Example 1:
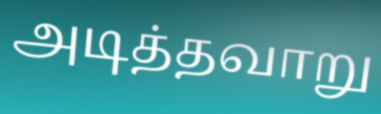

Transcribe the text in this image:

அடித்தவாறு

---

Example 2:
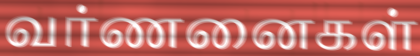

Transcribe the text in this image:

வர்ணனைகள்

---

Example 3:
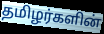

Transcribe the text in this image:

தமிழர்களின்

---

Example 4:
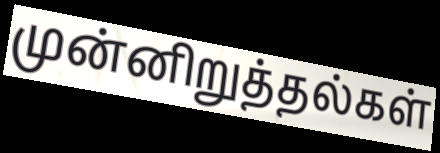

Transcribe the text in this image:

முன்னிறுத்தல்கள்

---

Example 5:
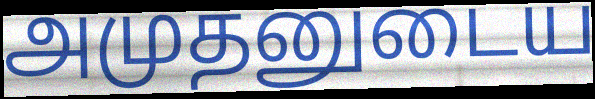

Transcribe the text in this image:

அமுதனுடைய